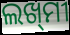
ଲଖ୍‌ମୀ